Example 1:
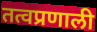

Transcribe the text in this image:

तत्वप्रणाली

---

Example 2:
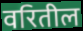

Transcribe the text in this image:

वरितील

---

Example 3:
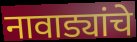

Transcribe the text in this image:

नावाड्यांचे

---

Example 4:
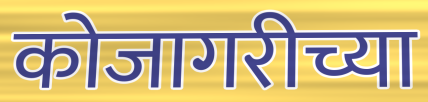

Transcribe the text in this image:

कोजागरीच्या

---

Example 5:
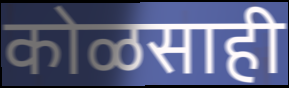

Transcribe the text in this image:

कोळसाही